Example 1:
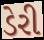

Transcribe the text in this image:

ડેરી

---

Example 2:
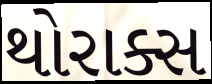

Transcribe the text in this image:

થોરાક્સ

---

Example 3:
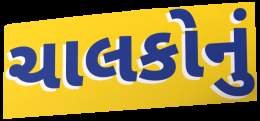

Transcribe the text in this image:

ચાલકોનું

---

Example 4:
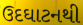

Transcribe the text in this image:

ઉદઘાટનથી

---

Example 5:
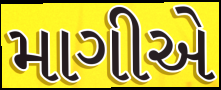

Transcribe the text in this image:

માગીએ